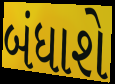
બંધાશે